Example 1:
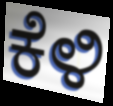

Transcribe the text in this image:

ಕೆಳಿ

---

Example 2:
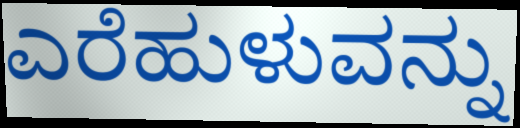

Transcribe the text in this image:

ಎರೆಹುಳುವನ್ನು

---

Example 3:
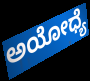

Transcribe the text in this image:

ಅಯೋಧ್ಯೆ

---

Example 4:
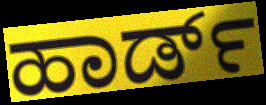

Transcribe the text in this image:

ಹಾರ್ಡ್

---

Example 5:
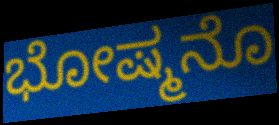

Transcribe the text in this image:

ಭೋಷ್ಮನೊ